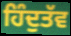
ਹਿੰਦੁਤੱਵ